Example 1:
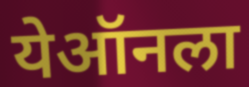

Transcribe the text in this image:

येऑनला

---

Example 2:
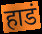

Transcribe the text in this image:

हाडं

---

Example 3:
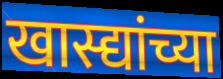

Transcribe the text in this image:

खास्द्यांच्या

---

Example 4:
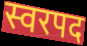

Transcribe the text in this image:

स्वरपद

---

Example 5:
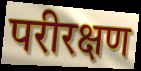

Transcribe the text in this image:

परीरक्षण